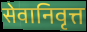
सेवानिवृत्त